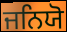
ਜਨਿਯੋ